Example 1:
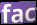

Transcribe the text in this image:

fac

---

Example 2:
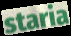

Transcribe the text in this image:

staria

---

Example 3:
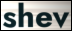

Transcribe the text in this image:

shev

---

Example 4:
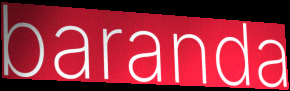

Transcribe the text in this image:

baranda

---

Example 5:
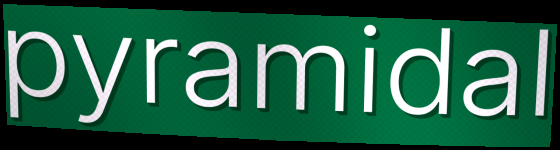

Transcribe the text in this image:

pyramidal